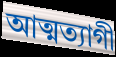
আত্মত্যাগী